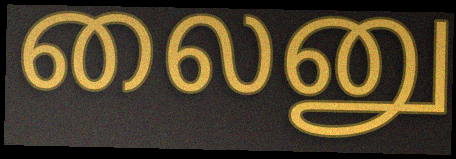
லைனு